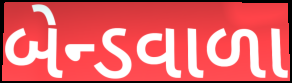
બેન્ડવાળા